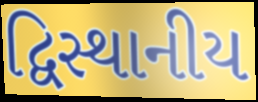
દ્વિસ્થાનીય